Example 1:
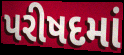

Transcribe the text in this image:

પરીષદમાં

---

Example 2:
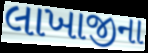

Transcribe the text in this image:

લાખાજીના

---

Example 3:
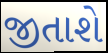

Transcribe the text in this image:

જીતાશે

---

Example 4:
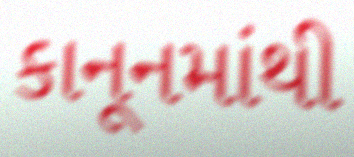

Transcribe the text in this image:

કાનૂનમાંથી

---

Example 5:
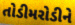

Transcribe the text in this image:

તોડીમરોડીને